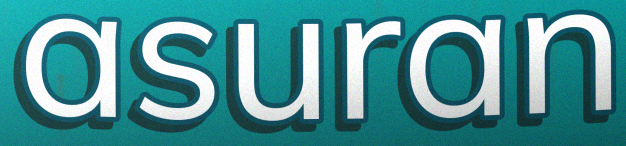
asuran